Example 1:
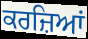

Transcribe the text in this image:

ਕਰਜ਼ਿਆਂ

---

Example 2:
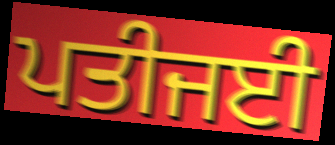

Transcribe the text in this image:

ਪਤੀਜਈ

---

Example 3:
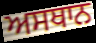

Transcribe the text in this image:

ਅਸਥਾਨ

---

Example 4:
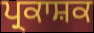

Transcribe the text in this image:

ਪ੍ਰਕਾਸ਼ਕ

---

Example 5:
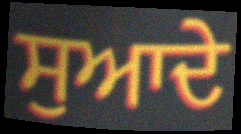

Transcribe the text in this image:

ਸੁਆਦੇ